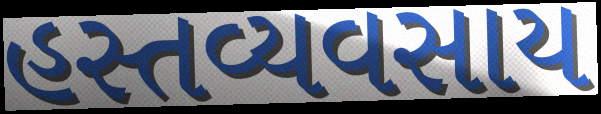
હસ્તવ્યવસાય